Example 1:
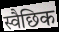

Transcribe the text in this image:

स्वैछिक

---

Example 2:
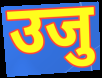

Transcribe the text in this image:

उजु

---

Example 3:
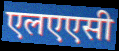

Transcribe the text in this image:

एलएएसी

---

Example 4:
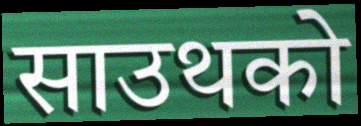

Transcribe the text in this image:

साउथको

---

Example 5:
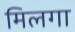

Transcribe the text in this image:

मिलगा